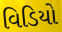
વિડિયો